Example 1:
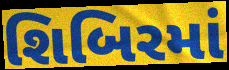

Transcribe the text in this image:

શિબિરમાં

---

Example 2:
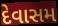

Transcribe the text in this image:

દેવાસમ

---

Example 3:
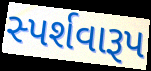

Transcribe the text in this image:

સ્પર્શવારૂપ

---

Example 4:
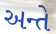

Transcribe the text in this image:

અન્તે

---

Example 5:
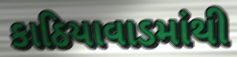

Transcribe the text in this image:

કાઠિયાવાડમાંથી